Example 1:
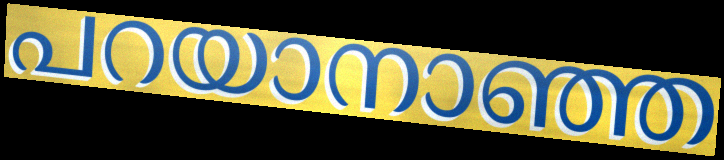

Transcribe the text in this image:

പറയാനാഞ്ഞ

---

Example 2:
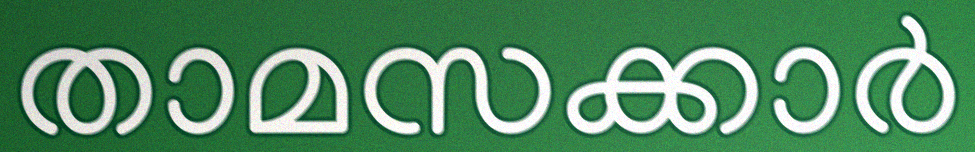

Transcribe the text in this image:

താമസക്കാർ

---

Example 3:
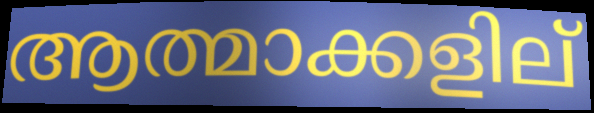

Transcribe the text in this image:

ആത്മാക്കളില്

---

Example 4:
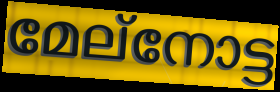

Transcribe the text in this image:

മേല്നോട്ട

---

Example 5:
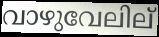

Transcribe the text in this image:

വാഴുവേലില്